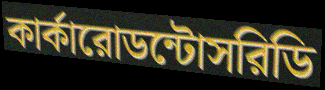
কার্কারোডন্টোসরিডি